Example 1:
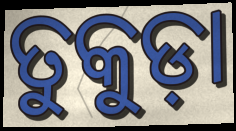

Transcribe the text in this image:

ତୁକୁଡ଼ା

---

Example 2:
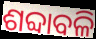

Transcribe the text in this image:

ଶବ୍ଦାବଳି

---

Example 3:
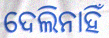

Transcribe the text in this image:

ଦେଲିନାହିଁ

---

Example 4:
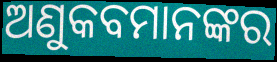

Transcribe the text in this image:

ଅଣୁକବମାନଙ୍କର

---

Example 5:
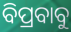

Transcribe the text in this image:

ବିପ୍ରବାବୁ